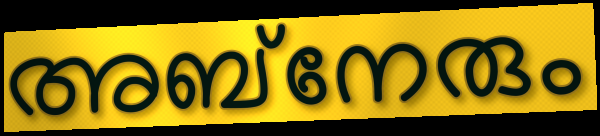
അബ്നേരും